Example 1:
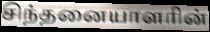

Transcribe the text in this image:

சிந்தனையாளரின்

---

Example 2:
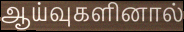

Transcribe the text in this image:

ஆய்வுகளினால்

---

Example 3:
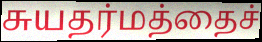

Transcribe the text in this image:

சுயதர்மத்தைச்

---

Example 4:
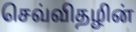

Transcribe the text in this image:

செவ்விதழின்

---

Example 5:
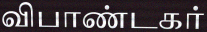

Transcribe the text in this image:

விபாண்டகர்